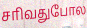
சரிவதுபோல